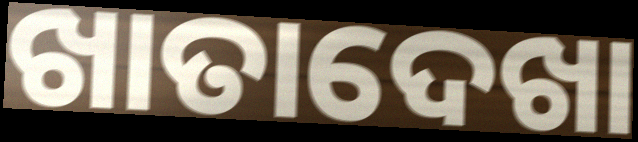
ଖାତାଦେଖା